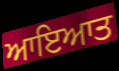
ਆਇਆਤ